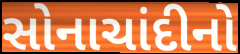
સોનાચાંદીનો